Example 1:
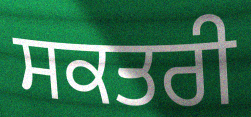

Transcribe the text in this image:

ਸਕਤਰੀ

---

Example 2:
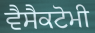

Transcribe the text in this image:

ਵੈਸੈਕਟੋਮੀ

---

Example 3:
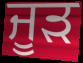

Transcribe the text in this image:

ਜੂੜ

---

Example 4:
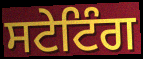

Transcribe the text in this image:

ਸਟੇਟਿੰਗ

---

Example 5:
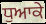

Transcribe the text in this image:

ਧੁਆਕੇ